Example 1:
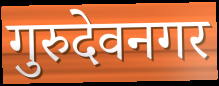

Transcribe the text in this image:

गुरुदेवनगर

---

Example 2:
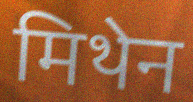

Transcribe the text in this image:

मिथेन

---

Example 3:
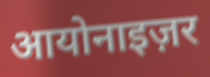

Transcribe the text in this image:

आयोनाइज़र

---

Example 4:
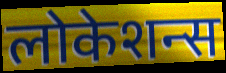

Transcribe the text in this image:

लोकेशन्स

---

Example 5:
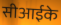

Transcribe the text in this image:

सीआईके